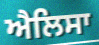
ਐਲਿਸਾ